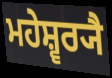
ਮਹੇਸ਼੍ਵਰ੍ਯੈ